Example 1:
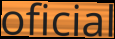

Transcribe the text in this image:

oficial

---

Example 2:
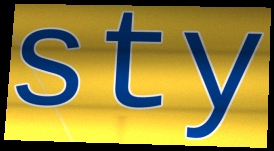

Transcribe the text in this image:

sty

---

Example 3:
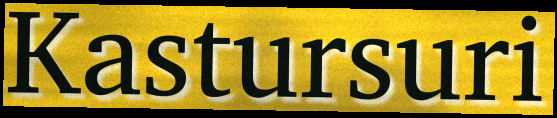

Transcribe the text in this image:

Kastursuri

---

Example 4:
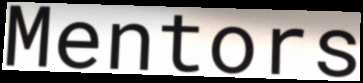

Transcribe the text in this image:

Mentors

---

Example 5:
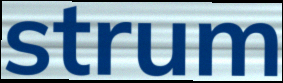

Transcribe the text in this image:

strum